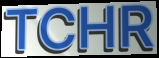
TCHR